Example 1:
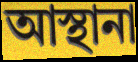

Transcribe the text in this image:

আস্থানা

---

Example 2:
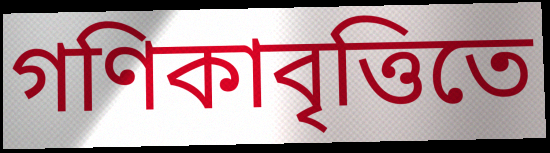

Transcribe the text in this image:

গণিকাবৃত্তিতে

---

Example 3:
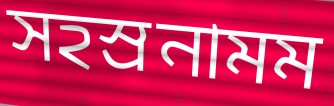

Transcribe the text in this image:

সহস্রনামম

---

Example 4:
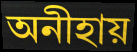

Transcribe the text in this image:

অনীহায়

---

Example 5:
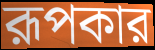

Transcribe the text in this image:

রূপকার